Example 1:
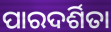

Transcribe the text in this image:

ପାରଦର୍ଶିତା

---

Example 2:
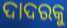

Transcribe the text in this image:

ଦାଦରକୁ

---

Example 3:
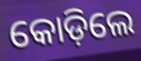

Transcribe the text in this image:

କୋଡ଼ିଲେ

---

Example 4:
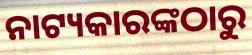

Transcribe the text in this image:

ନାଟ୍ୟକାରଙ୍କଠାରୁ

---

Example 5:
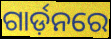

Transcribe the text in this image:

ଗାର୍ଡ଼ନରେ